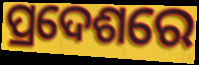
ପ୍ରଦେଶରେ